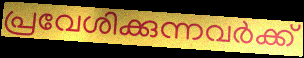
പ്രവേശിക്കുന്നവർക്ക്